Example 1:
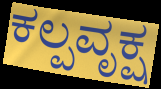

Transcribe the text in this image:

ಕಲ್ಪವೃಕ್ಷ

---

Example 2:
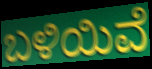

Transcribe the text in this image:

ಬಳಿಯಿವೆ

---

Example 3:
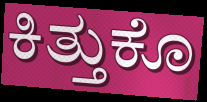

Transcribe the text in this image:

ಕಿತ್ತುಕೊ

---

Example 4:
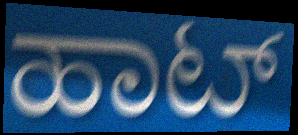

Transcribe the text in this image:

ಹಾಟ್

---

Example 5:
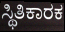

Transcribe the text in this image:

ಸ್ಥಿತಿಕಾರಕ